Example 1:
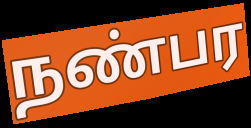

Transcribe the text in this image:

நண்பர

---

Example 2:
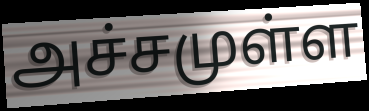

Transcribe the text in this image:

அச்சமுள்ள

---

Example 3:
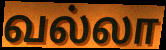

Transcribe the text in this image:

வல்லா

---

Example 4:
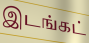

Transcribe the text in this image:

இடங்கட்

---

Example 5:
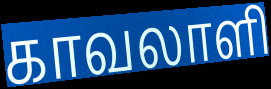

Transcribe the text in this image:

காவலாளி